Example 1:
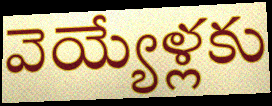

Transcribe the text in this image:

వెయ్యేళ్లకు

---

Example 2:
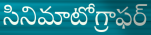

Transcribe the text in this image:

సినిమాటోగ్రాఫర్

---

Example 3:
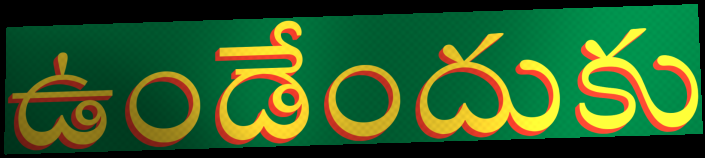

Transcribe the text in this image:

ఉండేందుకు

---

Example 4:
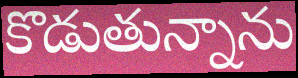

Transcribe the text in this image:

కొడుతున్నాను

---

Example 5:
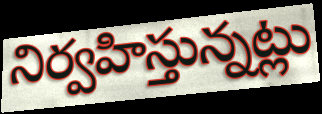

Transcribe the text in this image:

నిర్వహిస్తున్నట్లు